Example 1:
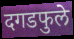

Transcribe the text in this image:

दगडफुले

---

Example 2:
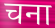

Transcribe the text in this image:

चना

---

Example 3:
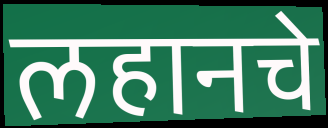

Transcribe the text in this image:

लहानचे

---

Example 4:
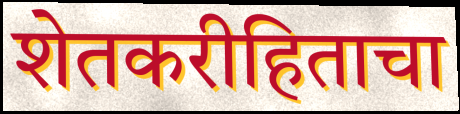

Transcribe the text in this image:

शेतकरीहिताचा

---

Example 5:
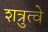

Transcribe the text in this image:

शत्रुत्वे